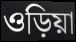
ওড়িয়া